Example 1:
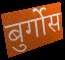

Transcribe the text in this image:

बुर्गोस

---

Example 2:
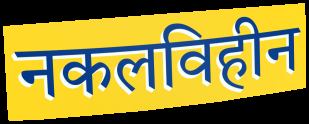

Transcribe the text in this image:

नकलविहीन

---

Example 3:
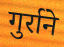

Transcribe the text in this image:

गुर्राने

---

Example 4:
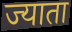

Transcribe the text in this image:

ज्याता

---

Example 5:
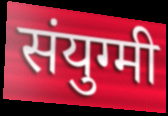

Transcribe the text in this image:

संयुग्मी